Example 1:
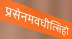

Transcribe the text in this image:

प्रसेनमवधीत्सिंहो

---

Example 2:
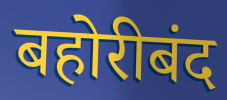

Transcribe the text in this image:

बहोरीबंद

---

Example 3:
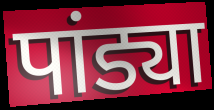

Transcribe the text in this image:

पांड्या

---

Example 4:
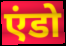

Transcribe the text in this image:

एंडो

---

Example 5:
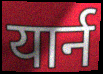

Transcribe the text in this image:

यार्न